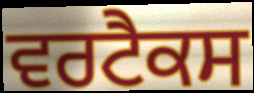
ਵਰਟੈਕਸ